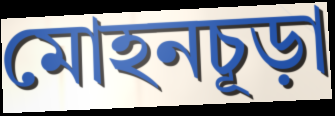
মোহনচূড়া